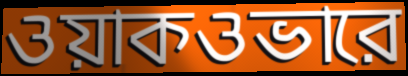
ওয়াকওভারে